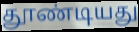
தூண்டியது